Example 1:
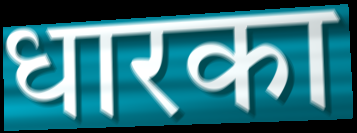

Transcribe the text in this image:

धारका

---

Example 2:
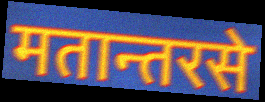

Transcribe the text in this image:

मतान्तरसे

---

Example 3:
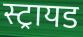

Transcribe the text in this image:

स्ट्रायड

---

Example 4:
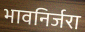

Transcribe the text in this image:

भावनिर्जरा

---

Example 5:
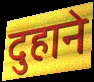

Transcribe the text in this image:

दुहाने